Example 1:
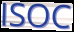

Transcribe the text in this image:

ISOC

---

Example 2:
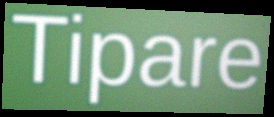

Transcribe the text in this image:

Tipare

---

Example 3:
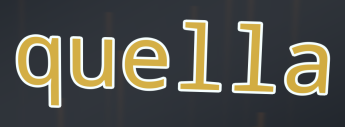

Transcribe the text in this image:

quella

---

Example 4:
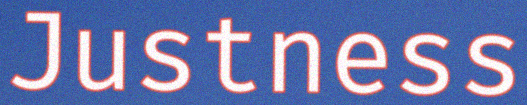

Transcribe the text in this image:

Justness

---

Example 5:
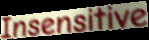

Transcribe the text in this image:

Insensitive